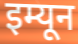
इम्यून